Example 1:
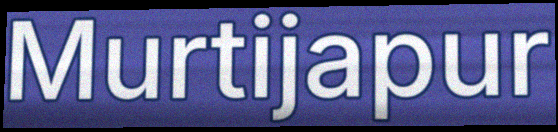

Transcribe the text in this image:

Murtijapur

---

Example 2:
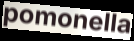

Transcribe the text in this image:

pomonella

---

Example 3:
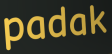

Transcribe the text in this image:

padak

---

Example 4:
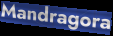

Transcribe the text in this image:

Mandragora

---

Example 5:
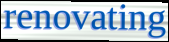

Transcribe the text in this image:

renovating